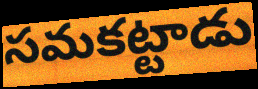
సమకట్టాడు